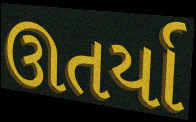
ઊતર્યા